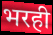
भरही